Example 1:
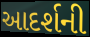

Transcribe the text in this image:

આદર્શની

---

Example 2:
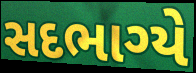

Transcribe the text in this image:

સદભાગ્યે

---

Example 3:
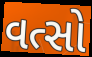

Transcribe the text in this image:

વત્સો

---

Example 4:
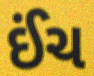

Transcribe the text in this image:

ઈંચ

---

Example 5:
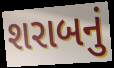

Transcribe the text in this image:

શરાબનું